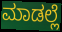
ಮಾಡಲ್ಲೆ